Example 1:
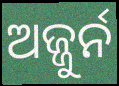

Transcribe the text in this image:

ଅଜ୍ଜୁର୍ନ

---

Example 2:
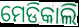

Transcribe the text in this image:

ମେଡିକାଲି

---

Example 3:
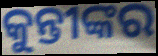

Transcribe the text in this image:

କୁନ୍ତୀଙ୍କର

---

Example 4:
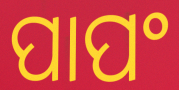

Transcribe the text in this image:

ପାପଂ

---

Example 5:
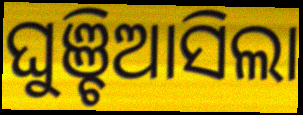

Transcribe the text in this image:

ଘୁଞ୍ଚିଆସିଲା